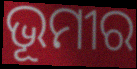
ଭୂମୀର